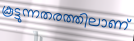
കൂട്ടുന്നതരത്തിലാണ്